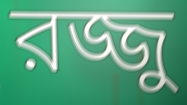
রজ্জু